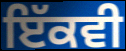
ਇੱਕਵੀ